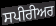
ਸਪੀਰੀਅਰ